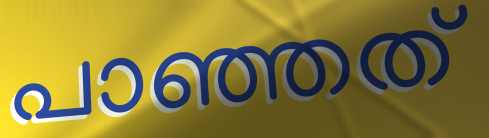
പാഞ്ഞത്